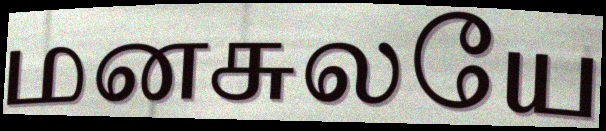
மனசுலயே